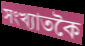
সংখ্যাতকৈ